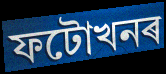
ফটোখনৰ